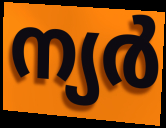
ന്യർ